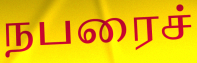
நபரைச்